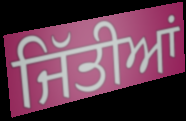
ਜਿੱਤੀਆਂ